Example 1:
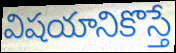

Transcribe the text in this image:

విషయానికొస్తే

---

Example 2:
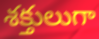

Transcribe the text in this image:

శక్తులుగా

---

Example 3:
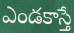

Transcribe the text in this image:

ఎండకాస్తే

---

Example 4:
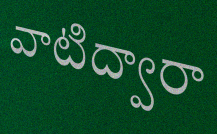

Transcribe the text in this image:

వాటిద్వారా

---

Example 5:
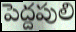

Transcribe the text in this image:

పెద్దపులి